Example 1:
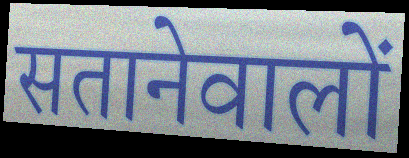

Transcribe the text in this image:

सतानेवालों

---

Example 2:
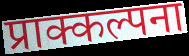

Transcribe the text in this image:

प्राक्कल्पना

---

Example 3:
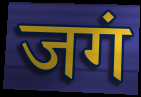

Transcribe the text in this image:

जगं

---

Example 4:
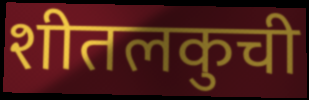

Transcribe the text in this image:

शीतलकुची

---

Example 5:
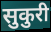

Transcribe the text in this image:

सुकुरी